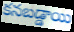
కనబడ్డాయి